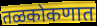
तळकोकणात